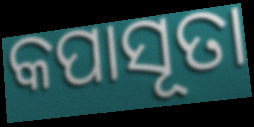
କପାସୂତା